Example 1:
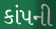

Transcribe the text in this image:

કાંપની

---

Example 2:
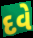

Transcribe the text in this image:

દવે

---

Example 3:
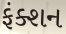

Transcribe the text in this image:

ફંક્શન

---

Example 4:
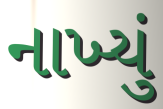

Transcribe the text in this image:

નાખ્યું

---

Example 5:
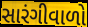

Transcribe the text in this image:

સારંગીવાળો